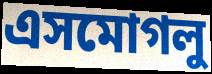
এসমোগলু